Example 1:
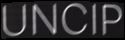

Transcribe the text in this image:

UNCIP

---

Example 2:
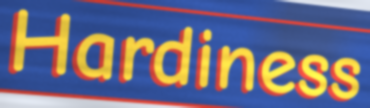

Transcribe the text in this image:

Hardiness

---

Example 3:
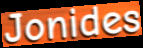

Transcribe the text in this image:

Jonides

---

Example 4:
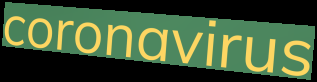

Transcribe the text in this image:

coronavirus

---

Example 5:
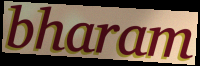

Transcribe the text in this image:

bharam